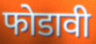
फोडावी